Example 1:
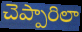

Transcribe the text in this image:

చెప్పారిలా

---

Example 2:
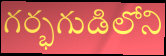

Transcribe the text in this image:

గర్భగుడిలోని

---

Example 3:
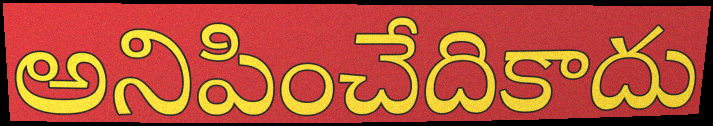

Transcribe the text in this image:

అనిపించేదికాదు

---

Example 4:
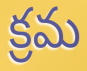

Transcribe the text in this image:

క్రమ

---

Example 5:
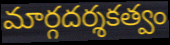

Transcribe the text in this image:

మార్గదర్శకత్వం